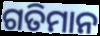
ଗତିମାନ